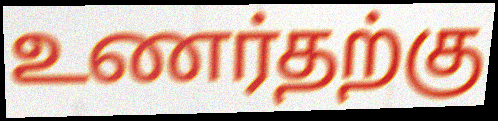
உணர்தற்கு